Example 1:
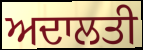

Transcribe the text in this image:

ਅਦਾਲਤੀ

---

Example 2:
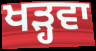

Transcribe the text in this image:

ਖੜ੍ਹਵਾ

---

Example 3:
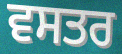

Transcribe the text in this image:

ਵਸਤਰ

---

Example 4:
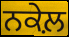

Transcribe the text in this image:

ਨਕੇਲ਼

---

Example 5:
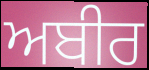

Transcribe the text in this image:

ਅਬੀਰ